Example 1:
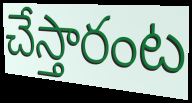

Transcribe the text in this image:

చేస్తారంట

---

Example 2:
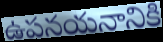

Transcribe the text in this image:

ఉపనయనానికి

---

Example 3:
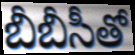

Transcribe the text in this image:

బీబీసీతో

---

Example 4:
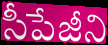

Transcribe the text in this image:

సీపేజీని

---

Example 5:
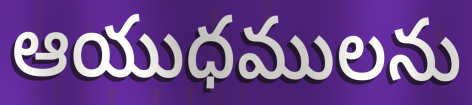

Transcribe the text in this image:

ఆయుధములను